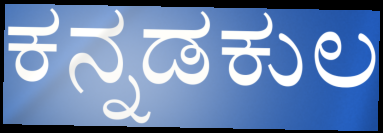
ಕನ್ನಡಕುಲ